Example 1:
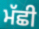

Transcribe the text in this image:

ਮੱਛੀ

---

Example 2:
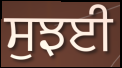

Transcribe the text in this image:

ਸੁਝਈ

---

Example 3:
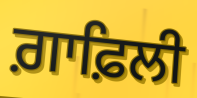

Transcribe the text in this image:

ਗ਼ਾਫ਼ਿਲੀ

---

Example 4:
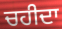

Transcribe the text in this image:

ਚਹੀਦਾ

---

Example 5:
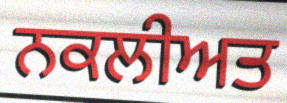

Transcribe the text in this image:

ਨਕਲੀਅਤ